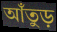
আঁতুড়